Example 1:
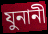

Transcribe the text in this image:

যুনানী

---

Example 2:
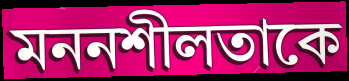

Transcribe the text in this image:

মননশীলতাকে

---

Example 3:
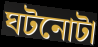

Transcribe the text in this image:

ঘটনোটা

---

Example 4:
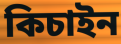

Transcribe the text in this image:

কিচাইন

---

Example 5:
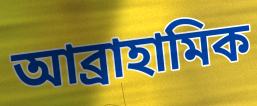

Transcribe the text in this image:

আব্রাহামিক